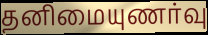
தனிமையுணர்வு